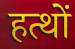
हत्थों